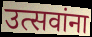
उत्सवांना